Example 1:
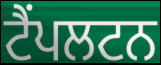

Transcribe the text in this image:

ਟੈਂਪਲਟਨ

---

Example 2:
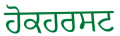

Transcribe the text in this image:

ਹੋਕਹਰਸਟ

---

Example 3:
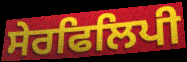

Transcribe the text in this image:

ਸੇਰਫਿਲਿਪੀ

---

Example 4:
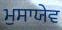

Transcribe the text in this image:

ਮੁਸਾਯੇਵ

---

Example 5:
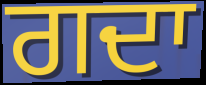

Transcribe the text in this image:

ਗਦਾ